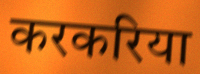
करकरिया